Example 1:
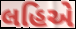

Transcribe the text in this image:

લહિએ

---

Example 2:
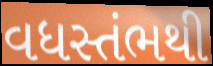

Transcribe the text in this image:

વધસ્તંભથી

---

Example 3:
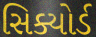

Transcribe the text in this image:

સિક્યોર્ડ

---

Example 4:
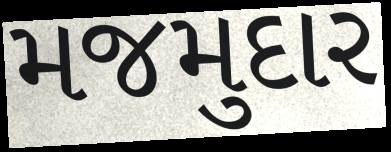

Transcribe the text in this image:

મજમુદાર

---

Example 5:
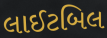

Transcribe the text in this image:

લાઈટબિલ